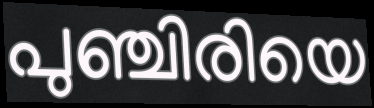
പുഞ്ചിരിയെ